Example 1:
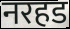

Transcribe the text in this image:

नरहड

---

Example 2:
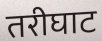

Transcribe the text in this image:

तरीघाट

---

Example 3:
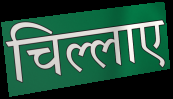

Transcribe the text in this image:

चिल्लाए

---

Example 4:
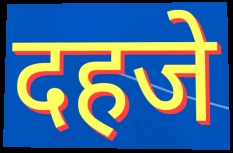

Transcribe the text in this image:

दहजे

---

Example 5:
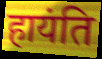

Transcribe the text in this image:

हायंति